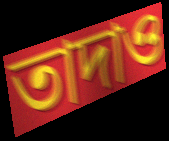
তাদাও